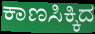
ಕಾಣಸಿಕ್ಕಿದ